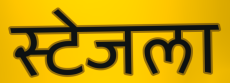
स्टेजला